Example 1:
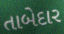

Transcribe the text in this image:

તાબેદાર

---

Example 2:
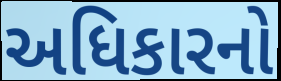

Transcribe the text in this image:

અધિકારનો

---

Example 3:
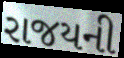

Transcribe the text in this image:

રાજયની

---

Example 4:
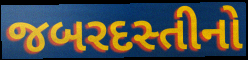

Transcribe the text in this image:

જબરદસ્તીનો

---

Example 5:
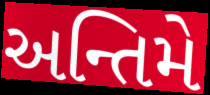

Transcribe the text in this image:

અન્તિમે